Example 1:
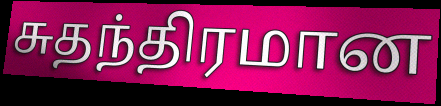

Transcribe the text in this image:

சுதந்திரமான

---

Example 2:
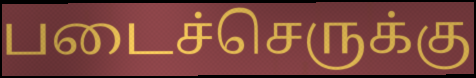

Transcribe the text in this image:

படைச்செருக்கு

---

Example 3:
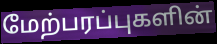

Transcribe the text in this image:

மேற்பரப்புகளின்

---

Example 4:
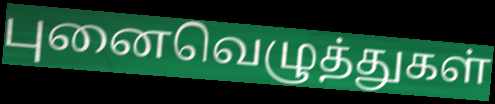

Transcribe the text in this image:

புனைவெழுத்துகள்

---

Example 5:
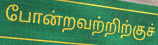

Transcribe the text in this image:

போன்றவற்றிற்குச்